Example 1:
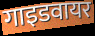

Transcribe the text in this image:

गाइडवायर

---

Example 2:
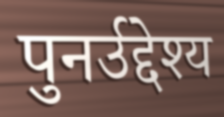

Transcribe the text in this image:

पुनर्उद्देश्य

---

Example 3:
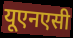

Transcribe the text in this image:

यूएनएसी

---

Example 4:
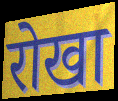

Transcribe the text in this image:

रोखा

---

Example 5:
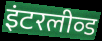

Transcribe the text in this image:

इंटरलीव्ड